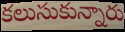
కలుసుకున్నారు